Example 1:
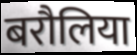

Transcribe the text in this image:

बरौलिया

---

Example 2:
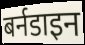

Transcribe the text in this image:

बर्नडाइन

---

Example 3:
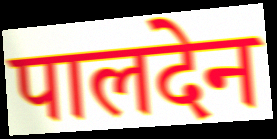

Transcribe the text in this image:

पालदेन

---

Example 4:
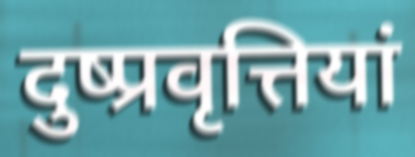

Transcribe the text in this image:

दुष्प्रवृत्तियां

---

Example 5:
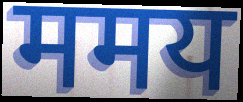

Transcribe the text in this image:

ममय